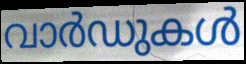
വാർഡുകൾ